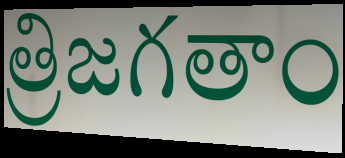
త్రిజగతాం